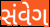
સંવેગ